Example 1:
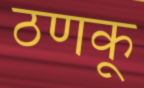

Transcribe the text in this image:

ठणकू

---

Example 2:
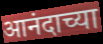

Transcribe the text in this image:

आनंदाच्या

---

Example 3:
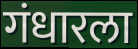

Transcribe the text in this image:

गंधारला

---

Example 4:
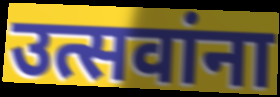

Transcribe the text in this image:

उत्सवांना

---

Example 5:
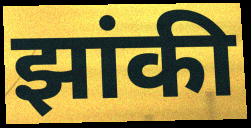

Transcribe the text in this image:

झांकी